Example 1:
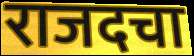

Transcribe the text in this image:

राजदचा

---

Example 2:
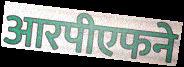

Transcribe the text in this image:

आरपीएफने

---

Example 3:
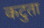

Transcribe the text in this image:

कटुता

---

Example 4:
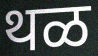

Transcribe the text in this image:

थळ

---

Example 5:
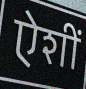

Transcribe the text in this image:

ऐशीं